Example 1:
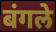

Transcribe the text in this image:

बंगले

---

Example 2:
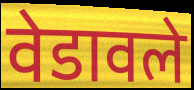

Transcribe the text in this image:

वेडावले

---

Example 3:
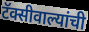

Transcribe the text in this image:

टॅक्सीवाल्यांची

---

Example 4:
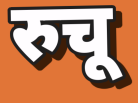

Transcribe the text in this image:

रुचू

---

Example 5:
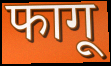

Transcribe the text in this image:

फागू